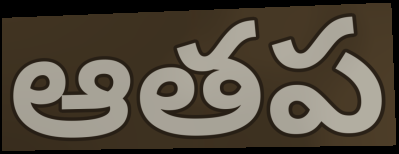
ఆతప